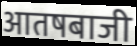
आतषबाजी